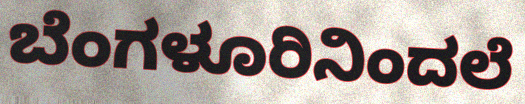
ಬೆಂಗಳೂರಿನಿಂದಲೆ